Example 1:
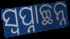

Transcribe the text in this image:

ସ୍ଵପ୍ନାଚ୍ଛନ୍ନ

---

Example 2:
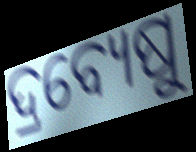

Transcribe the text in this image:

ଦ୍ରବ୍ୟେଷୁ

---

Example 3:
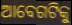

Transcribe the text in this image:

ଆବେଗଟିକୁ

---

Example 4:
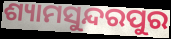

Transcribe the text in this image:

ଶ୍ୟାମସୁନ୍ଦରପୁର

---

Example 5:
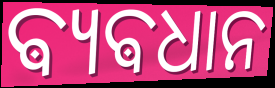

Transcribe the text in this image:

ଵ୍ୟଵଧାନ